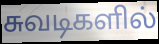
சுவடிகளில்